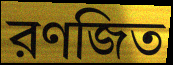
রণজিত